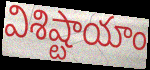
విశిష్టాయాం